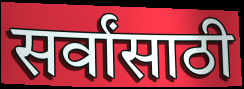
सर्वांसाठी